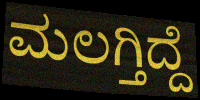
ಮಲಗ್ತಿದ್ದೆ